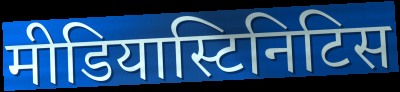
मीडियास्टिनिटिस